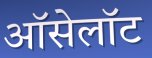
ऑसेलॉट